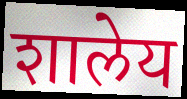
शालेय